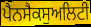
ਪੈਨਸੈਕਸੁਅਲਿਟੀ